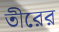
তীরের